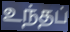
உந்தப்